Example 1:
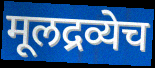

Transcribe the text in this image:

मूलद्रव्येच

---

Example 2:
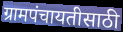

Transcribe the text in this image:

ग्रामपंचायतीसाठी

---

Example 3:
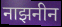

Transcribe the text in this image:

नाझनीन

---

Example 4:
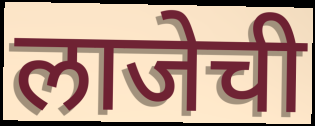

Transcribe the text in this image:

लाजेची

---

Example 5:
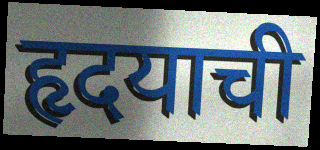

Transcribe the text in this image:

हृदयाची